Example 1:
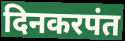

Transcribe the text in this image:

दिनकरपंत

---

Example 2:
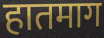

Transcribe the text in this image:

हातमाग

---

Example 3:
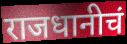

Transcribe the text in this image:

राजधानीचं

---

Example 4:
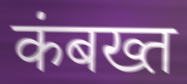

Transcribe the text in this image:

कंबख्त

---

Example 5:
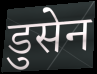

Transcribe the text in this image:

डुसेन